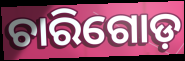
ଚାରିଗୋଡ଼